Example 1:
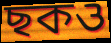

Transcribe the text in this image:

ছকও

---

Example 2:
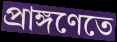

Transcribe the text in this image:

প্রাঙ্গণেতে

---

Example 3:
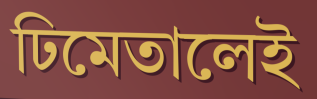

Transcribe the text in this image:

ঢিমেতালেই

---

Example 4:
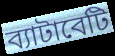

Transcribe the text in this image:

ব্যাটাবেটি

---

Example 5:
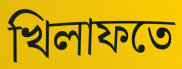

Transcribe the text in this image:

খিলাফতে